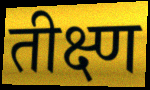
तीक्ष्ण